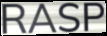
RASP